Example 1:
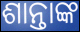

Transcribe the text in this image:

ଶାନ୍ତାଙ୍କ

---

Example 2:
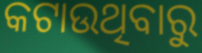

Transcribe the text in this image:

କଟାଉଥିବାରୁ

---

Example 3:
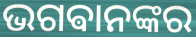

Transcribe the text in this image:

ଭଗଵାନଙ୍କର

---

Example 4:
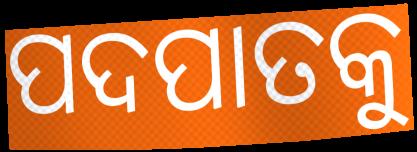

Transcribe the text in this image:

ପଦପାତକୁ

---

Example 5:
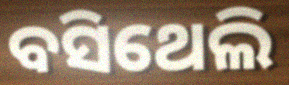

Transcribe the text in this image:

ବସିଥେଲି